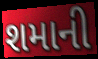
શમાની